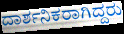
ದಾರ್ಶನಿಕರಾಗಿದ್ದರು